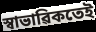
স্বাভাৱিকতেই